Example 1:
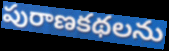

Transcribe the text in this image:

పురాణకథలను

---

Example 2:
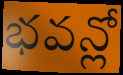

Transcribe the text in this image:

భవన్లో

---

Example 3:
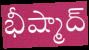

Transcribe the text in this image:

భీష్మాద్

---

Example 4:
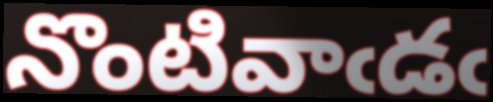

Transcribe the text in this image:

నొంటివాఁడఁ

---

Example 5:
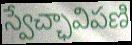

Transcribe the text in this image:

స్వేచ్ఛావిపణి